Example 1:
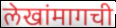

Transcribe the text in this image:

लेखांमागची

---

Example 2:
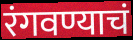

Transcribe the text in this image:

रंगवण्याचं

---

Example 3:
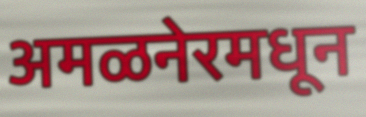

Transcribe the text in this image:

अमळनेरमधून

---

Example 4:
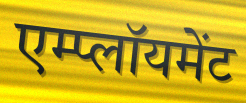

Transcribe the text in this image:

एम्प्लॉयमेंट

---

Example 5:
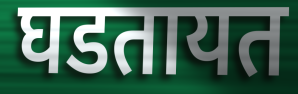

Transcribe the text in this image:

घडतायत